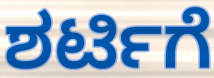
ಶರ್ಟಿಗೆ